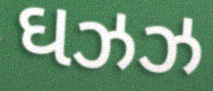
ઘઝઝ